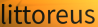
littoreus